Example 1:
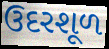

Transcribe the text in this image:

ઉદરશૂળ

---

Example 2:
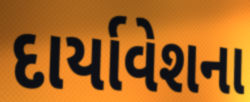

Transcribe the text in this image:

દાર્યાવેશના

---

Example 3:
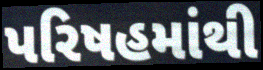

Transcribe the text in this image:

પરિષહમાંથી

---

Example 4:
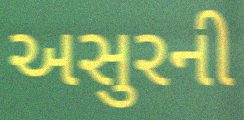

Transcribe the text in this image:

અસુરની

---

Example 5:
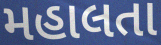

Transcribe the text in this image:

મહાલતા